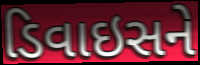
ડિવાઇસને